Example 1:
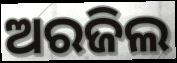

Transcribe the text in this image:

ଅରଜିଲ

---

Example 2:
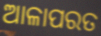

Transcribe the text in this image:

ଆଳାପରତ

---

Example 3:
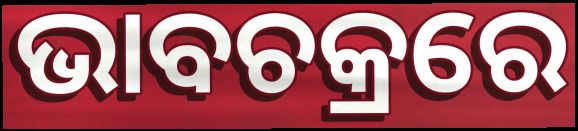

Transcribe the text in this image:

ଭାବଚକ୍ରରେ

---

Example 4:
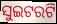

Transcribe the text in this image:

ସୁଇଟରଟି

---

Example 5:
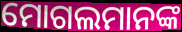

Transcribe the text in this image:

ମୋଗଲମାନଙ୍କ